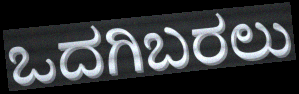
ಒದಗಿಬರಲು